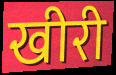
खीरी